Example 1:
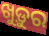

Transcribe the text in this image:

ଖୁଡ଼ୁର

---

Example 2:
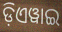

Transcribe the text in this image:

ଡ଼ିଏୱାଇ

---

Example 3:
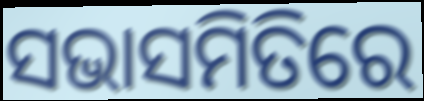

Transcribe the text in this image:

ସଭାସମିତିରେ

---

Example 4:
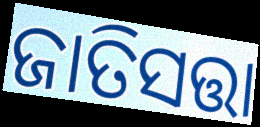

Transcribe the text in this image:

ଜାତିସତ୍ତା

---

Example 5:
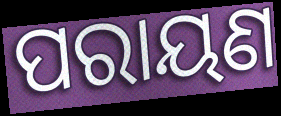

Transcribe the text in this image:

ପରାୟଣ